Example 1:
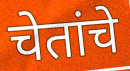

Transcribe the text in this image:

चेतांचे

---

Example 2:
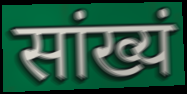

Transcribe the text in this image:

सांख्यं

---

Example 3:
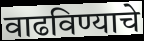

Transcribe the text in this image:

वाढविण्याचे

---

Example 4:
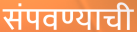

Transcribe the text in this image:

संपवण्याची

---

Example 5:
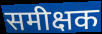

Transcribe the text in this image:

समीक्षक